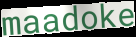
maadoke